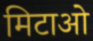
मिटाओ